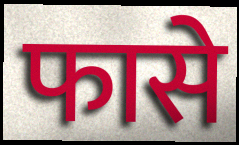
फासे